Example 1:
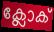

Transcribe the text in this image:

ക്ലോക്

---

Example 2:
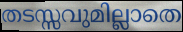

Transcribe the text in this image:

തടസ്സവുമില്ലാതെ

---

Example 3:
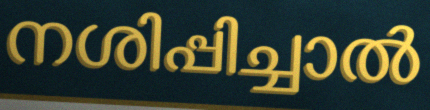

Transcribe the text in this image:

നശിപ്പിച്ചാൽ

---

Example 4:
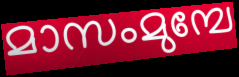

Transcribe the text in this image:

മാസംമുമ്പേ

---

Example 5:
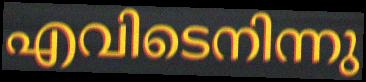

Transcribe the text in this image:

എവിടെനിന്നു